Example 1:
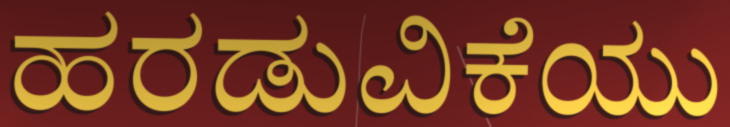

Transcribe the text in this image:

ಹರಡುವಿಕೆಯು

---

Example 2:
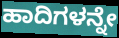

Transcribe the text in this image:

ಹಾದಿಗಳನ್ನೇ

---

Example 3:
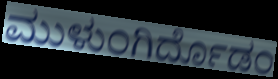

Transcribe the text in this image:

ಮುಳುಂಗಿರ್ದೊಡಂ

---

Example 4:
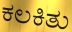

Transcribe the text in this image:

ಕಲಕಿತು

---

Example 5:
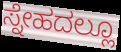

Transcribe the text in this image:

ಸ್ನೇಹದಲ್ಲೂ